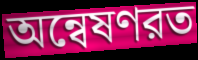
অন্বেষণরত